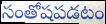
సంతోషపడటం